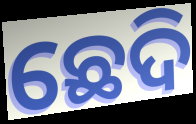
ଛେଦି